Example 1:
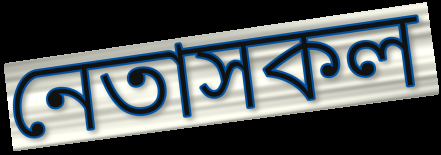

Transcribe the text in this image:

নেতাসকল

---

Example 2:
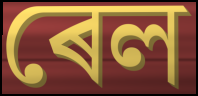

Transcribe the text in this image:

ৰেল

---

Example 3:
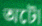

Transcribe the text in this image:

অটো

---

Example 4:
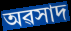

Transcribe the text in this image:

অৱসাদ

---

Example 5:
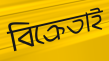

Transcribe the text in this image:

বিক্ৰেতাই